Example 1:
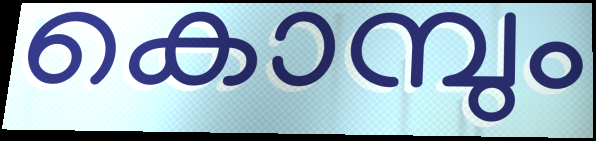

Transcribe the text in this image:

കൊമ്പും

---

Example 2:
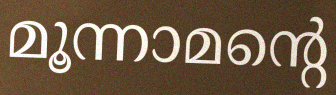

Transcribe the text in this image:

മൂന്നാമന്റെ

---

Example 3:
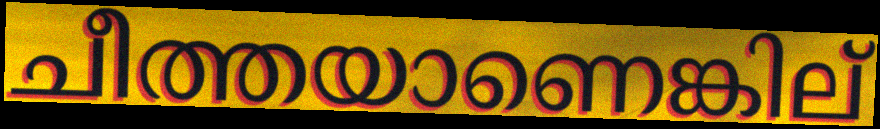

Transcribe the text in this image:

ചീത്തയാണെങ്കില്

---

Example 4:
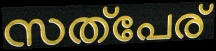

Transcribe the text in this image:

സത്പേര്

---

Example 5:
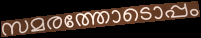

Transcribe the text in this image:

സമരത്തോടൊപ്പം